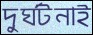
দুর্ঘটনাই